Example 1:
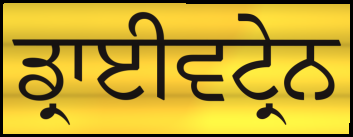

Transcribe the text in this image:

ਡ੍ਰਾਈਵਟ੍ਰੇਨ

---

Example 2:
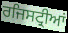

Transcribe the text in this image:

ਰਜਿਸਟ੍ਰੀਆਂ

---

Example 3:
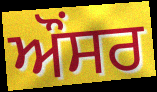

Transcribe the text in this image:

ਔਂਸਰ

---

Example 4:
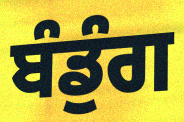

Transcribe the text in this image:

ਬੰਡੁੰਗ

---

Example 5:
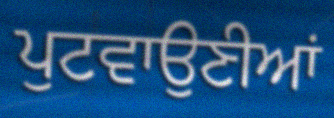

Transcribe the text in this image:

ਪੁਟਵਾਉਣੀਆਂ